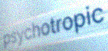
psychotropic